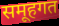
समूहगत